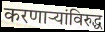
करणाऱ्यांविरुद्ध